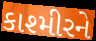
કાશ્મીરને